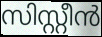
സിസ്റ്റീൻ